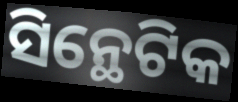
ସିନ୍ଥେଟିକ